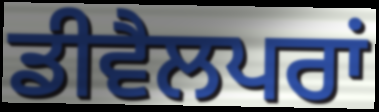
ਡੀਵੈਲਪਰਾਂ